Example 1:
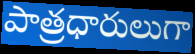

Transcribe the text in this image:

పాత్రధారులుగా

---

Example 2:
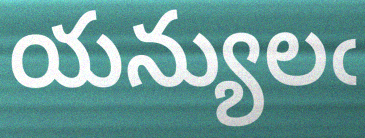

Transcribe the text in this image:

యన్యులఁ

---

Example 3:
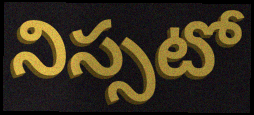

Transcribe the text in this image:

నిస్సటో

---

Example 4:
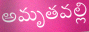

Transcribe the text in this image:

అమృతవల్లి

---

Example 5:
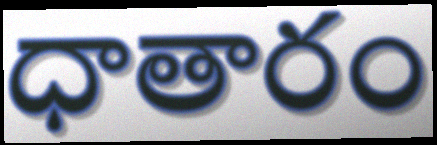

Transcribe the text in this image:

ధాతారం